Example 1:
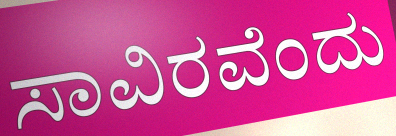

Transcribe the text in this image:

ಸಾವಿರವೆಂದು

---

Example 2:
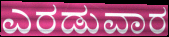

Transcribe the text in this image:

ಎರಡುವಾರ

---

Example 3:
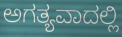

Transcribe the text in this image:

ಅಗತ್ಯವಾದಲ್ಲಿ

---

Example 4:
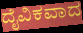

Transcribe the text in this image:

ದೈವಿಕವಾದ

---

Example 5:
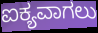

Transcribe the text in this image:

ಐಕ್ಯವಾಗಲು